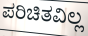
ಪರಿಚಿತವಿಲ್ಲ